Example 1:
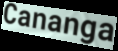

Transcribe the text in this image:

Cananga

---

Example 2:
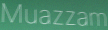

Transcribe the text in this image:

Muazzam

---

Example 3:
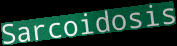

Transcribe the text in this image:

Sarcoidosis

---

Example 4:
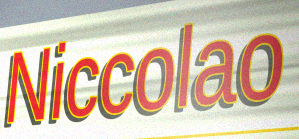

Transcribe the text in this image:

Niccolao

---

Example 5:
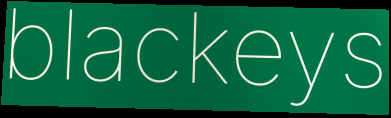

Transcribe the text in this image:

blackeys